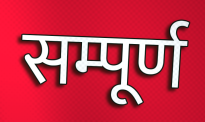
सम्‍पूर्ण